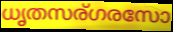
ധൃതസര്ഗരസോ